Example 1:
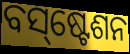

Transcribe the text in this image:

ବସ୍‌ଷ୍ଟେଶନ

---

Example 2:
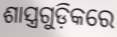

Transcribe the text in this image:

ଶାସ୍ତ୍ରଗୁଡ଼ିକରେ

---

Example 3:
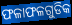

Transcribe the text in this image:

ଫଳାଫଳଗୁଡିକ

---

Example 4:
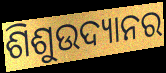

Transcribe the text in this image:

ଶିଶୁଉଦ୍ୟାନର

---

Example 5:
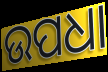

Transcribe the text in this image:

ଉପଧା